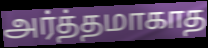
அர்த்தமாகாத